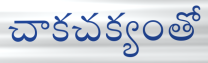
చాకచక్యంతో